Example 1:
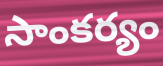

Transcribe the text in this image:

సాంకర్యం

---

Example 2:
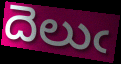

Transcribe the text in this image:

దెలుఁ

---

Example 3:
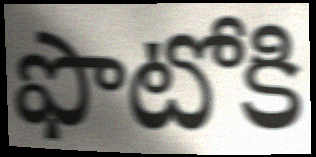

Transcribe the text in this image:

ఫొటోకి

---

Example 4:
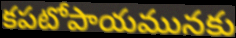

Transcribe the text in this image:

కపటోపాయమునకు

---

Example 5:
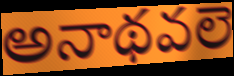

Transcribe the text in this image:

అనాథవలె